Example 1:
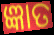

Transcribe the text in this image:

ଜ୍ଞାତ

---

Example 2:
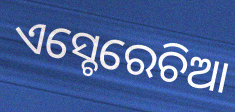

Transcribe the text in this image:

ଏସ୍ଚେରେଚିଆ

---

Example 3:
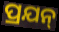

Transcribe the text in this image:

ପ୍ରଯନ୍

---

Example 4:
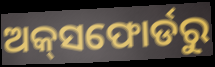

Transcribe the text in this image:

ଅକ୍‌ସଫୋର୍ଡରୁ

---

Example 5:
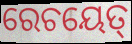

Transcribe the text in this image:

ରେଚୟେତ୍